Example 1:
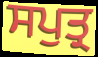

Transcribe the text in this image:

ਸਪੁਤ੍ਰ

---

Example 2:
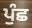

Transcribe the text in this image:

ਪੁੰਛ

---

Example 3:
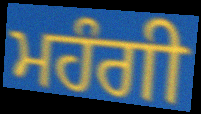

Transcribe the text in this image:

ਮਹੰਗੀ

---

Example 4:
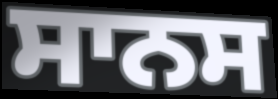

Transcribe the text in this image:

ਸਾਨਸ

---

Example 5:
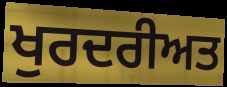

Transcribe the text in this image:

ਖੁਰਦਰੀਅਤ